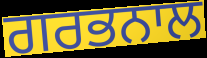
ਗਰਭਨਾਲ